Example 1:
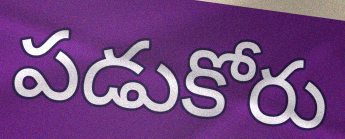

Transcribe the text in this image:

పడుకోరు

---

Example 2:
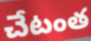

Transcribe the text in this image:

చేటంత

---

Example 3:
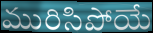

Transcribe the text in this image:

మురిసిపోయే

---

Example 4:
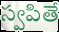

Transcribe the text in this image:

స్వపితే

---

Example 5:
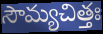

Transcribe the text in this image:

సౌమ్యచిత్తః